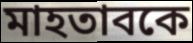
মাহতাবকে